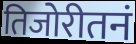
तिजोरीतनं